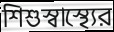
শিশুস্বাস্থ্যের